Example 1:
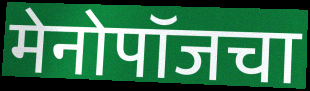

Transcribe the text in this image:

मेनोपॉजचा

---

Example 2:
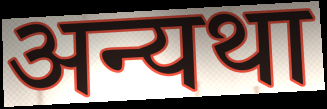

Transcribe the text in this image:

अन्यथा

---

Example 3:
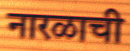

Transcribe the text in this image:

नारळाची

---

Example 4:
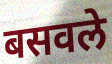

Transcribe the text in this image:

बसवले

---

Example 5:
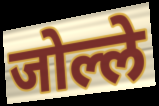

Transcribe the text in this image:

जोल्ले